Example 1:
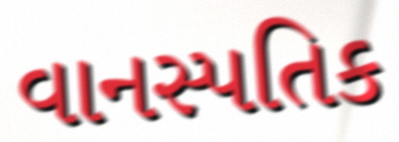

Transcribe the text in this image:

વાનસ્પતિક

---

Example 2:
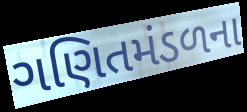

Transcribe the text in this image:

ગણિતમંડળના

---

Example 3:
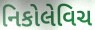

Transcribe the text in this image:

નિકોલેવિચ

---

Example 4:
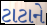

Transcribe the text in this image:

ટાટાને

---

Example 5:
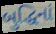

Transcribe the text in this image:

બુદ્ધિનાં